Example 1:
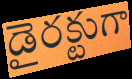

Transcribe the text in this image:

డైరక్టుగా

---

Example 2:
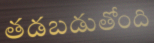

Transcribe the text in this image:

తడబడుతోంది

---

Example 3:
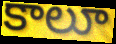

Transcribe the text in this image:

కాలూ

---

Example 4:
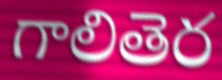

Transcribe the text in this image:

గాలితెర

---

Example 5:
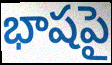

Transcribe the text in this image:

భాషపై